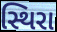
સ્થિરા